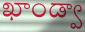
ఖాండ్వా